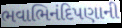
ભવાભિનંદિપણાની